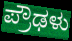
ಪ್ರೌಢಳು